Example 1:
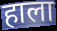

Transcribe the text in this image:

हाला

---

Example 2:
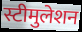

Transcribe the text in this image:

स्टीमुलेशन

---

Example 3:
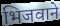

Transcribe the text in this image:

भिजवाने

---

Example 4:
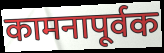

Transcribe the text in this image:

कामनापूर्वक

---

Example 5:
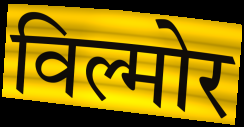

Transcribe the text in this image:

विल्मोर